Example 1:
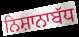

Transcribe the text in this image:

ਨਿਸ਼ਾਨਾਬੱਧ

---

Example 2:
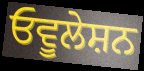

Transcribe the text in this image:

ਓਵੂਲੇਸ਼ਨ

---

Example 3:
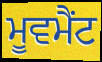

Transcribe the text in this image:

ਮੂਵਮੈਂਟ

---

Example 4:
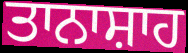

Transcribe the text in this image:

ਤਾਨਾਸ਼ਾਹ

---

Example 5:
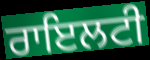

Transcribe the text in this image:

ਰਾਇਲਟੀ